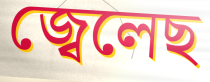
জ্বেলেছ